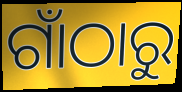
ଗାଁଠାରୁ